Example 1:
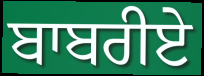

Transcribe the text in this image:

ਬਾਬਰੀਏ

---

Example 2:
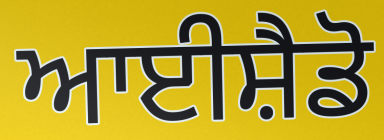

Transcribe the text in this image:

ਆਈਸ਼ੈਡੋ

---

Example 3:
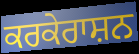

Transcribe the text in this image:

ਕਰਕੇਰਾਸ਼ਨ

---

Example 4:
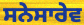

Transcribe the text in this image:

ਸਨੇਸਾਰੇਵ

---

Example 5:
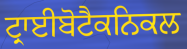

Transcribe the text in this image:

ਟ੍ਰਾਈਬੋਟੈਕਨਿਕਲ